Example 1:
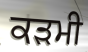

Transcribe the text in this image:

ਕੜਮੀ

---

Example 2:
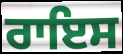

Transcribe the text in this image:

ਰਾਇਸ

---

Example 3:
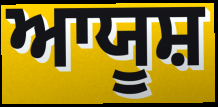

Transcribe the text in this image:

ਆਯੂਸ਼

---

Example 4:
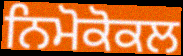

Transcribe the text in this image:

ਨਿਮੋਕੋਕਲ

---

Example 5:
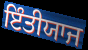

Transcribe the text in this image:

ਇੰਤੀਯਾਜ